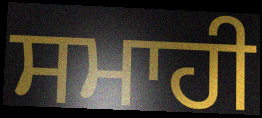
ਸਮਾਹੀ